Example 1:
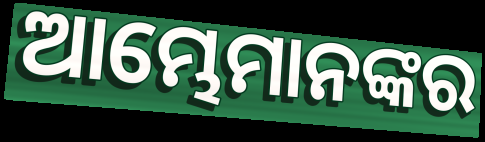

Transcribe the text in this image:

ଆମ୍ଭେମାନଙ୍କର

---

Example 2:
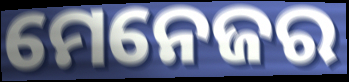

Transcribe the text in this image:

ମେନେଜର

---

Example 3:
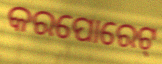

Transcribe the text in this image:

କରପୋରେଟ୍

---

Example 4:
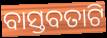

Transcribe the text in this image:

ବାସ୍ତବତାଟି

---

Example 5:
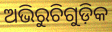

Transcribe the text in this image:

ଅଭିରୁଚିଗୁଡ଼ିକ